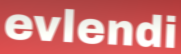
evlendi